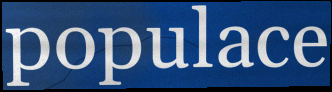
populace